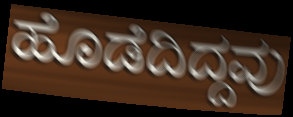
ಹೊಡೆದಿದ್ದವು